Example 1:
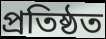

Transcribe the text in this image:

প্রতিষ্ঠত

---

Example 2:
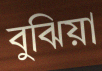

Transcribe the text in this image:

বুঝিয়া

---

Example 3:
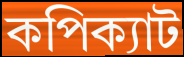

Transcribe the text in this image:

কপিক্যাট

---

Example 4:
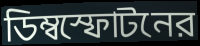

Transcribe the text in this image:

ডিম্বস্ফোটনের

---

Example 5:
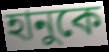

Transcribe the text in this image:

হানুকে